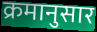
क्रमानुसार